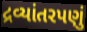
દ્રવ્યાંતરપણું